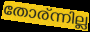
തോര്ന്നില്ല